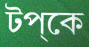
টপ্কে